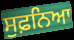
ਸੁਫ਼ਨਿਆ